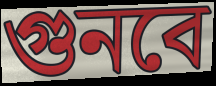
গুনবে